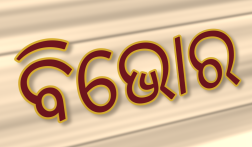
ବିଭୋର